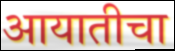
आयातीचा